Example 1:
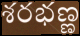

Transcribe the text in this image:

శరభణ్ణ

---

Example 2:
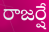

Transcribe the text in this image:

రాజర్షే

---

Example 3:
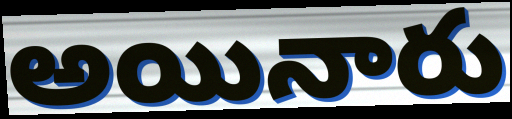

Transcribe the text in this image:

అయినారు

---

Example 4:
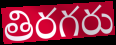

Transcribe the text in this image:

తిరగరు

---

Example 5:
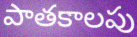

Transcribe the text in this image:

పాతకాలపు